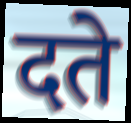
दते